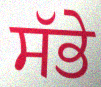
ਸੱਭੇ